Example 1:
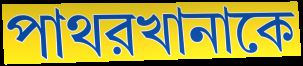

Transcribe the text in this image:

পাথরখানাকে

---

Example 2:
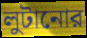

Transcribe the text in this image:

লুটানোর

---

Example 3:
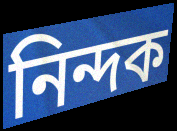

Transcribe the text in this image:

নিন্দক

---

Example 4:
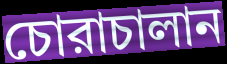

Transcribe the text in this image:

চোরাচালান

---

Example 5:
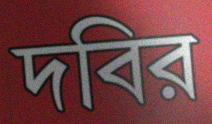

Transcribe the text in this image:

দবির